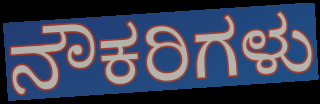
ನೌಕರಿಗಳು